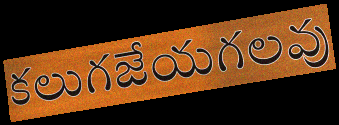
కలుగజేయగలవు